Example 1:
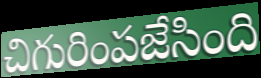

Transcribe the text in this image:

చిగురింపజేసింది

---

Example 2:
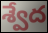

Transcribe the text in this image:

శ్వేద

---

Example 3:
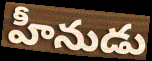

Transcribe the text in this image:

హీనుడు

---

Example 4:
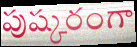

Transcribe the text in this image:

పుష్కరంగా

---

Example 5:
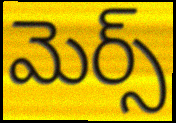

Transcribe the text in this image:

మెర్స్